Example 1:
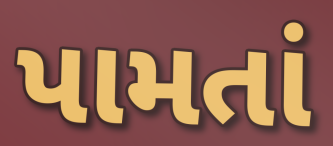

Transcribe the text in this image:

પામતાં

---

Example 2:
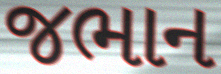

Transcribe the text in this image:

જભાન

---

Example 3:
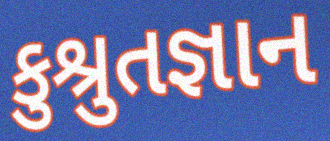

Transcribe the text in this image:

કુશ્રુતજ્ઞાન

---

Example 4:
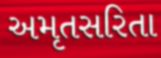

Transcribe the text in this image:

અમૃતસરિતા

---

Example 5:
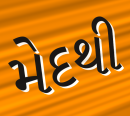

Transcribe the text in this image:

મેદથી